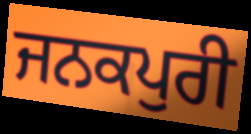
ਜਨਕਪੁਰੀ